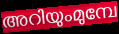
അറിയുംമുമ്പേ